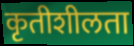
कृतीशीलता